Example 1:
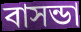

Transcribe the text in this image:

বাসন্ডা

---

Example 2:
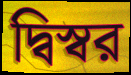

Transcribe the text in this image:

দ্বিস্বর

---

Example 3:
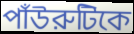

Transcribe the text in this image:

পাঁউরুটিকে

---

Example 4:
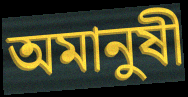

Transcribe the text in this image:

অমানুষী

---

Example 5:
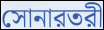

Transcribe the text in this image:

সোনারতরী